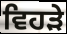
ਵਿਹੜੇ